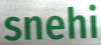
snehi